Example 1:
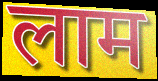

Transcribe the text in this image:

लाम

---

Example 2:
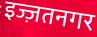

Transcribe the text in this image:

इज्ज़तनगर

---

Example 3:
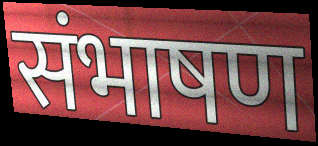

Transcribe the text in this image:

संभाषण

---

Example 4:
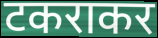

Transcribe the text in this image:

टकराकर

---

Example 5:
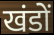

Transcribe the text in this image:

खंडों